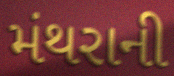
મંથરાની